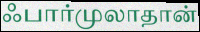
ஃபார்முலாதான்